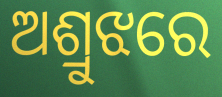
ଅଶ୍ରୁଝରେ